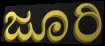
ಜೂರಿ